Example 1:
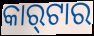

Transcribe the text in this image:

କାର୍‍ଟାର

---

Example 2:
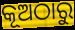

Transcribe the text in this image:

କୂଅଠାରୁ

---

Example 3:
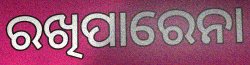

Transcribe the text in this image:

ରଖିପାରେନା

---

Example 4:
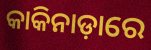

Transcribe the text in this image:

କାକିନାଡ଼ାରେ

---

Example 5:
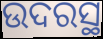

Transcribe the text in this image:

ଉଦରସ୍ଥ